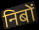
निबों